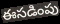
ఈసడింపు